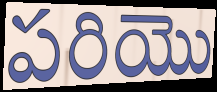
పరియొ